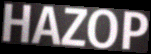
HAZOP